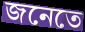
জনেতে